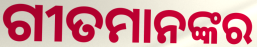
ଗୀତମାନଙ୍କର